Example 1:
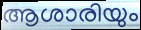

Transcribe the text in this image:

ആശാരിയും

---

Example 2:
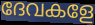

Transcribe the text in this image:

ദേവകളേ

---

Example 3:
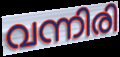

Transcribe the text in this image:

വന്നിരി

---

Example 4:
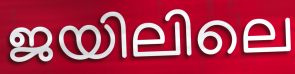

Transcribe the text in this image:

ജയിലിലെ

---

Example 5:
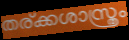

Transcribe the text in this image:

തര്ക്കശാസ്ത്രം